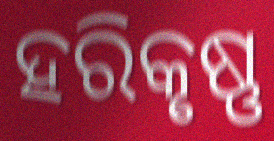
ହରିକୃଷ୍ଣ